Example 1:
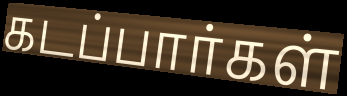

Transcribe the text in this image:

கடப்பார்கள்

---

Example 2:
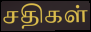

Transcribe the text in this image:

சதிகள்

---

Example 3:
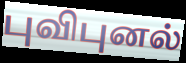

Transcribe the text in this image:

புவிபுனல்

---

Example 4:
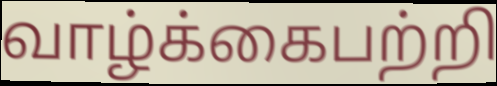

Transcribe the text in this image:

வாழ்க்கைபற்றி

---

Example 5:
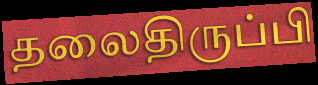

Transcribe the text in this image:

தலைதிருப்பி